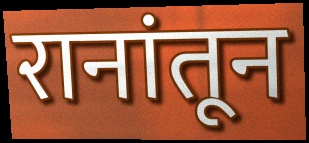
रानांतून